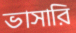
ভাসারি